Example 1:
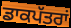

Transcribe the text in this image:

ਡਾਕਪੱਤਰਾਂ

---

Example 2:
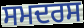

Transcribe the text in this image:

ਸਮਦਰਸ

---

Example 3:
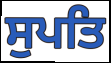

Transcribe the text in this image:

ਸੁਪਤਿ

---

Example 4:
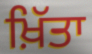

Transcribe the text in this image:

ਖ਼ਿੱਤਾ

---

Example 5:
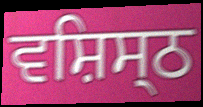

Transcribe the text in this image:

ਵਸ਼ਿਸ੍ਠ